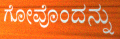
ಗೋವೊಂದನ್ನು